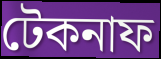
টেকনাফ